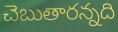
చెబుతారన్నది